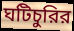
ঘটিচুরির